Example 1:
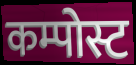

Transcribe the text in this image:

कम्पोस्ट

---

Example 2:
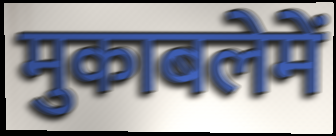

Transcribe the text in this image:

मुकाबलेमें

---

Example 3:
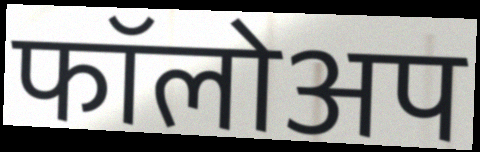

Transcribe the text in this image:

फॉलोअप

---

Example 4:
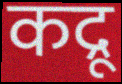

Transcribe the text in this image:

कद्रू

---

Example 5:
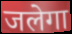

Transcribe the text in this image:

जलेगा